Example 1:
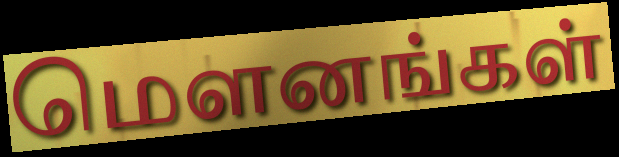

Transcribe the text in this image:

மௌனங்கள்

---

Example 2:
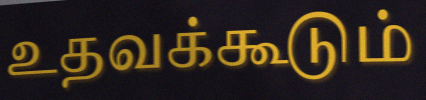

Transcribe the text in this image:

உதவக்கூடும்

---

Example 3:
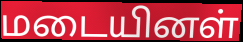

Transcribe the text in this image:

மடையினள்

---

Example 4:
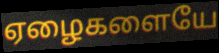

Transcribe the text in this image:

ஏழைகளையே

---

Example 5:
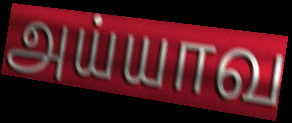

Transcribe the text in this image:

அய்யாவ